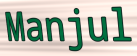
Manjul